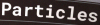
Particles